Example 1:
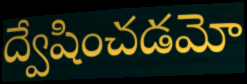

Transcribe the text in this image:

ద్వేషించడమో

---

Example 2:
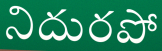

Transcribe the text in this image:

నిదురపో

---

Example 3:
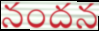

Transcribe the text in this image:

నందన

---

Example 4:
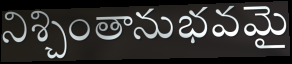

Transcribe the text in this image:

నిశ్చింతానుభవమై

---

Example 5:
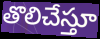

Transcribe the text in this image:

తొలిచేస్తూ